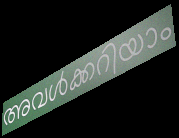
അവൾക്കറിയാം